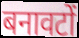
बनावटों